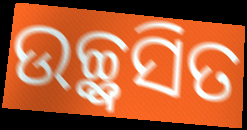
ଉଚ୍ଛ୍ୱସିତ